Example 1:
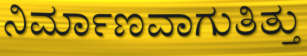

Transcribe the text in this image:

ನಿರ್ಮಾಣವಾಗುತಿತ್ತು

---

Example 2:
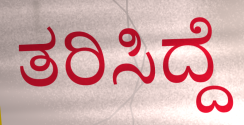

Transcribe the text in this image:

ತರಿಸಿದ್ದೆ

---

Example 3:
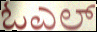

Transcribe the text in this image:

ಓಎಲ್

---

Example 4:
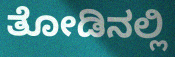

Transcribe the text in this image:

ತೋಡಿನಲ್ಲಿ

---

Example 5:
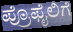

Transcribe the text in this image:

ಪ್ರೊಫೈಲಿಗೆ